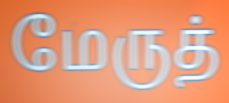
மேருத்